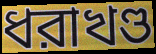
ধরাখণ্ড